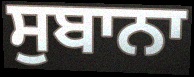
ਸੁਬਾਨਾ